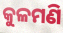
କୁଳମଣି